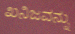
ಖನಿಜವನ್ನು